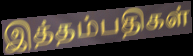
இத்தம்பதிகள்